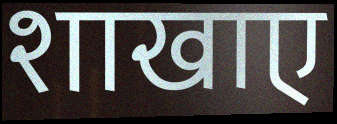
शाखाए